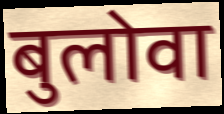
बुलोवा